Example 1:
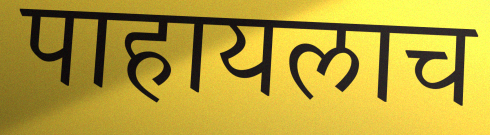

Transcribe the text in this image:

पाहायलाच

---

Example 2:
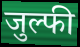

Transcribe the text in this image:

जुल्फी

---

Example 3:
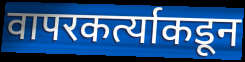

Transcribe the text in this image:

वापरकर्त्याकडून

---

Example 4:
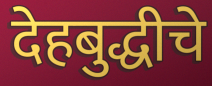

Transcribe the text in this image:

देहबुद्धीचे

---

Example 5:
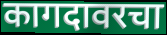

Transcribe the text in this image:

कागदावरचा